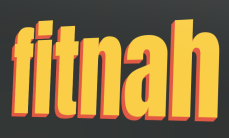
fitnah